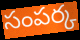
సంపర్క